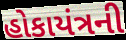
હોકાયંત્રની